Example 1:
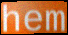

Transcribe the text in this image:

hem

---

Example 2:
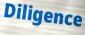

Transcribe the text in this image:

Diligence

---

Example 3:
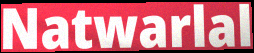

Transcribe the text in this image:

Natwarlal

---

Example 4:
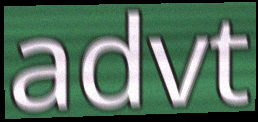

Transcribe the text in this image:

advt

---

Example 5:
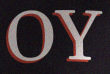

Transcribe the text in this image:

OY